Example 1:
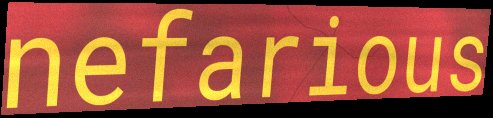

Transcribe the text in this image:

nefarious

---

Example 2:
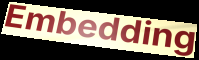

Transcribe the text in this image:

Embedding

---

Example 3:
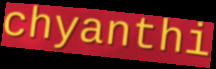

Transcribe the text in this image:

chyanthi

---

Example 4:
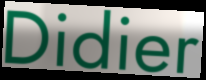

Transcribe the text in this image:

Didier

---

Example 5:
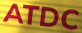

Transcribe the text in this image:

ATDC